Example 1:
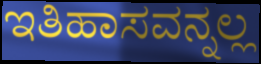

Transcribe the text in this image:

ಇತಿಹಾಸವನ್ನಲ್ಲ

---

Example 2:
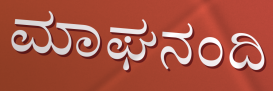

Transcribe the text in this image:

ಮಾಘನಂದಿ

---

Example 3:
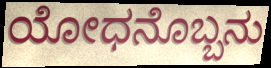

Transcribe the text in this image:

ಯೋಧನೊಬ್ಬನು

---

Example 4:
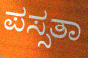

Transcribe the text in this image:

ಪಸ್ಸತಾ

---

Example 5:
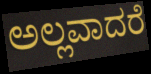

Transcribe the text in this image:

ಅಲ್ಲವಾದರೆ